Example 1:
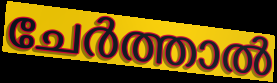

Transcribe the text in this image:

ചേർത്താൽ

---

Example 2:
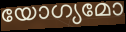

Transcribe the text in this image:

യോഗ്യമോ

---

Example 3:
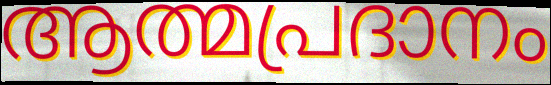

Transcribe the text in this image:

ആത്മപ്രദാനം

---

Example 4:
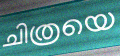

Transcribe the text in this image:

ചിത്രയെ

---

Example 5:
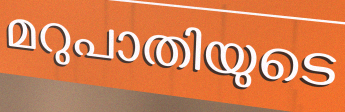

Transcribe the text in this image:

മറുപാതിയുടെ